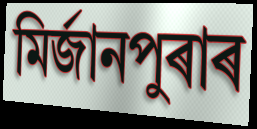
মিৰ্জানপুৰাৰ